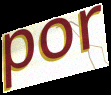
por